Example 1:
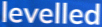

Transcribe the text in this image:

levelled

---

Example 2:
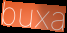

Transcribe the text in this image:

buxa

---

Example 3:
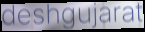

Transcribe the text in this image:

deshgujarat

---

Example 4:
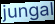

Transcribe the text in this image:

jungal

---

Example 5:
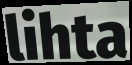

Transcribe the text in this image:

lihta